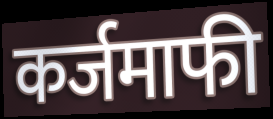
कर्जमाफी